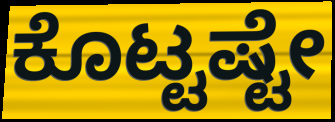
ಕೊಟ್ಟಷ್ಟೇ